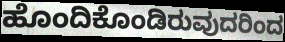
ಹೊಂದಿಕೊಂಡಿರುವುದರಿಂದ